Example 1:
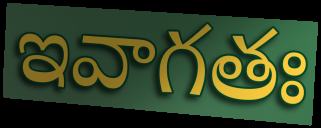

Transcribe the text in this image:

ఇవాగతః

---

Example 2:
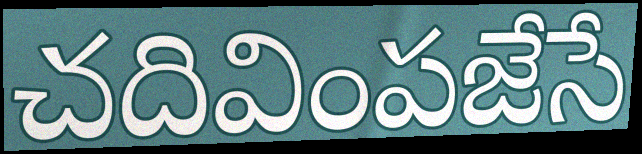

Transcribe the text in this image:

చదివింపజేసే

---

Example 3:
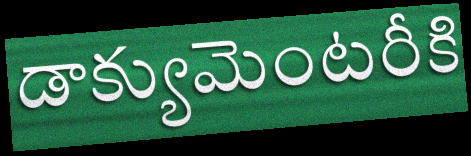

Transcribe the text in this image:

డాక్యుమెంటరీకి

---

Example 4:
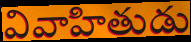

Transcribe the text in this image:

వివాహితుడు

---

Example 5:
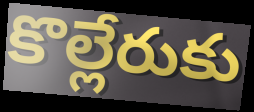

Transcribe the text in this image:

కొల్లేరుకు